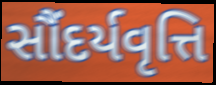
સૌંદર્યવૃત્તિ